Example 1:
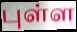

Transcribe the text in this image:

புள்ள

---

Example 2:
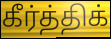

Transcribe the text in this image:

கீர்த்திக்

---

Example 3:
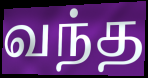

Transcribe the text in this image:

வந்த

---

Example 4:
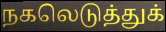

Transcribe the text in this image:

நகலெடுத்துக்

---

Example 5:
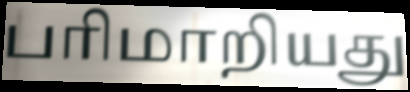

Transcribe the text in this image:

பரிமாறியது